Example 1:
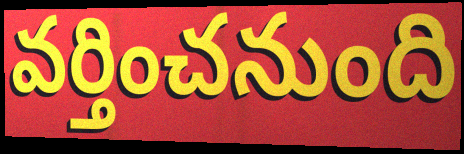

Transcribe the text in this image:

వర్తించనుంది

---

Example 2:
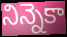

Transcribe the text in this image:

నిన్నెకా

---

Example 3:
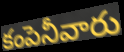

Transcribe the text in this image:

కంపెనీవారు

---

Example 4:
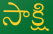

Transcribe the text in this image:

సాక్షి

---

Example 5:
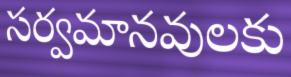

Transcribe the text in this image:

సర్వమానవులకు